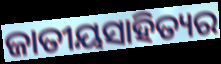
ଜାତୀୟସାହିତ୍ୟର